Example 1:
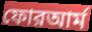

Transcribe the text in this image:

ফোরআর্ম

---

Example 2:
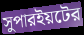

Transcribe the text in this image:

সুপারইয়টের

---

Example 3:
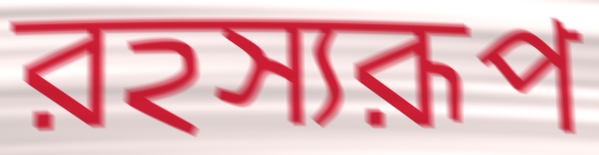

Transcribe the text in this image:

রহস্যরূপ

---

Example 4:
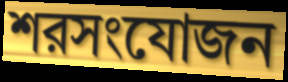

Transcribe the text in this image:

শরসংযোজন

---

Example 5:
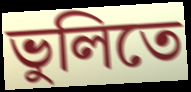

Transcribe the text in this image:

ভুলিতে